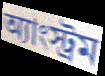
অ্যাংস্ট্রম